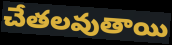
చేతలవుతాయి